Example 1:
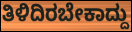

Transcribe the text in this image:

ತಿಳಿದಿರಬೇಕಾದ್ದು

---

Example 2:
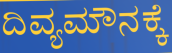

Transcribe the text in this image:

ದಿವ್ಯಮೌನಕ್ಕೆ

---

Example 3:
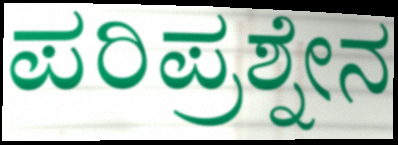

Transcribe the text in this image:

ಪರಿಪ್ರಶ್ನೇನ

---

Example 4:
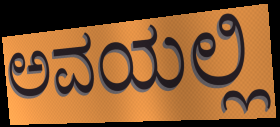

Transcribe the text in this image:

ಅವಯಲ್ಲಿ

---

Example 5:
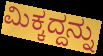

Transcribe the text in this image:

ಮಿಕ್ಕದ್ದನ್ನು